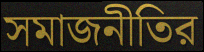
সমাজনীতির